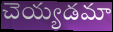
చెయ్యడమా